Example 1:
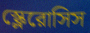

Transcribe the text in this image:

স্ক্লেরোসিস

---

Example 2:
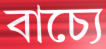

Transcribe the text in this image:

বাচ্যে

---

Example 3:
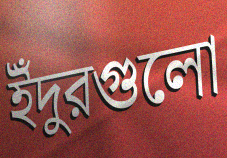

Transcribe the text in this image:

ইঁদুরগুলো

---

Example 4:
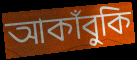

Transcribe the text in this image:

আকাঁবুকি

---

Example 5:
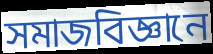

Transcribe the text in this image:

সমাজবিজ্ঞানে